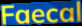
Faecal